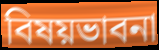
বিষয়ভাবনা